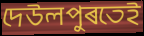
দেউলপুৰতেই